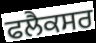
ਫਲੈਕਸਰ